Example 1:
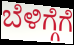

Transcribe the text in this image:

ಬೆಳಿಗ್ಗೆಗೆ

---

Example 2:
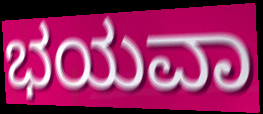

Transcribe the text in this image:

ಭಯವಾ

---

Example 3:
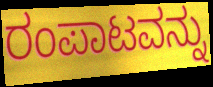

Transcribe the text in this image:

ರಂಪಾಟವನ್ನು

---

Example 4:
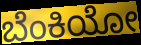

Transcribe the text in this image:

ಬೆಂಕಿಯೋ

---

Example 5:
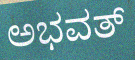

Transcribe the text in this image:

ಅಭವತ್